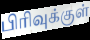
பிரிவுக்குள்